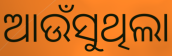
ଆଉଁସୁଥିଲା